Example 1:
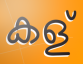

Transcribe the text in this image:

കള്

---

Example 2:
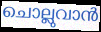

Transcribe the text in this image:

ചൊല്ലുവാൻ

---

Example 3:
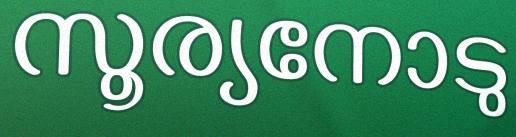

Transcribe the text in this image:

സൂര്യനോടു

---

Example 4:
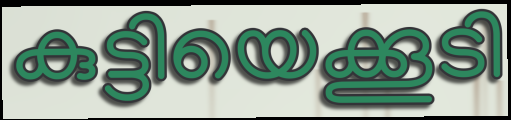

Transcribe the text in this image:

കുട്ടിയെക്കൂടി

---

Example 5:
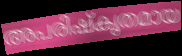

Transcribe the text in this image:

അപരിഷ്കൃതമായ